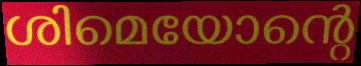
ശിമെയോന്റെ